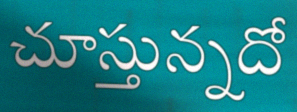
చూస్తున్నదో